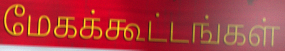
மேகக்கூட்டங்கள்